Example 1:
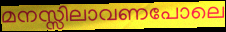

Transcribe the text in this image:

മനസ്സിലാവണപോലെ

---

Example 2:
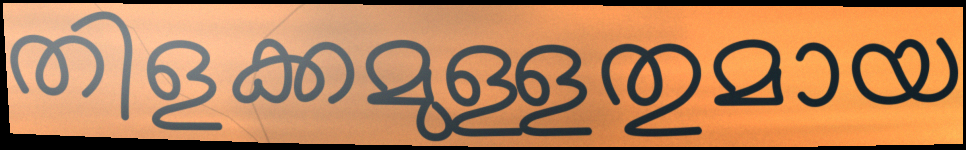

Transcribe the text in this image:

തിളക്കമുള്ളതുമായ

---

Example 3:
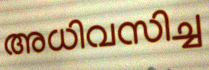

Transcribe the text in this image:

അധിവസിച്ച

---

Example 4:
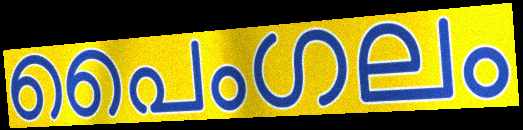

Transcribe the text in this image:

പൈംഗലം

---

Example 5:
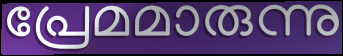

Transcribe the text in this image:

പ്രേമമാരുന്നു